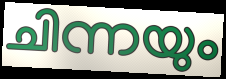
ചിന്നയും